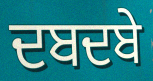
ਦਬਦਬੇ